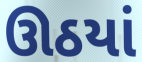
ઊઠયાં